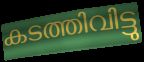
കടത്തിവിട്ടു